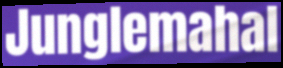
Junglemahal